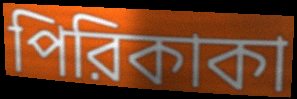
পিরিকাকা